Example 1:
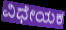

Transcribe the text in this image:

ವಿಧೇಯಕ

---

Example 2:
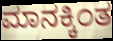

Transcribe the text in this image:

ಮಾನಕ್ಕಿಂತ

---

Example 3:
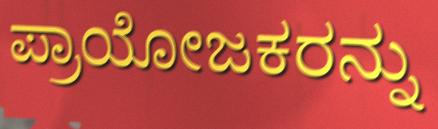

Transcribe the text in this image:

ಪ್ರಾಯೋಜಕರನ್ನು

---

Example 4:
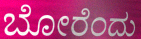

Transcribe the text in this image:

ಬೋರೆಂದು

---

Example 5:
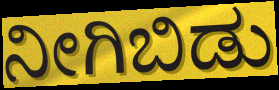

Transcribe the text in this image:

ನೀಗಿಬಿಡು